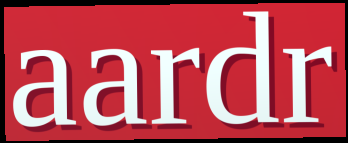
aardr